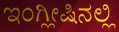
ಇಂಗ್ಲೀಷಿನಲ್ಲಿ